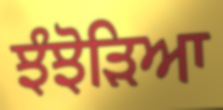
ਝੰਝੋੜਿਆ